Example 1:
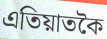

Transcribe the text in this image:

এতিয়াতকৈ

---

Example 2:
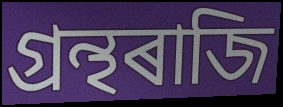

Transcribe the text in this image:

গ্ৰন্থৰাজি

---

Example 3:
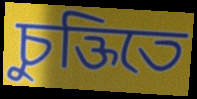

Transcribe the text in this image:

চুক্তিতে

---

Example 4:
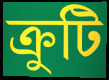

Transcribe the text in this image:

ক্ৰুটি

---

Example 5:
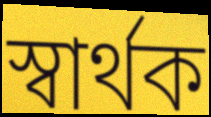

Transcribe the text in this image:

স্বাৰ্থক